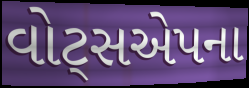
વોટ્સએપના